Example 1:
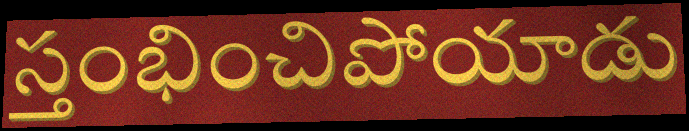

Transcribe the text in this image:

స్తంభించిపోయాడు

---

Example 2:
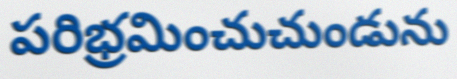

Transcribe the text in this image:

పరిభ్రమించుచుండును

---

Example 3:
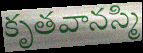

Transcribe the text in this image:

కృతవానస్మి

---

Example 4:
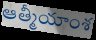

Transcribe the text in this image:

ఆత్మీయాంశ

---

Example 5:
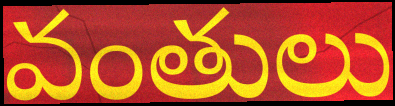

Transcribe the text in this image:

వంతులు